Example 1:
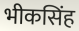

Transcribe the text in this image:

भीकसिंह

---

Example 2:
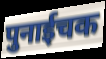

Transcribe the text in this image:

पुनाईचक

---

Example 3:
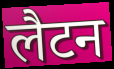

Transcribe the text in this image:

लैटन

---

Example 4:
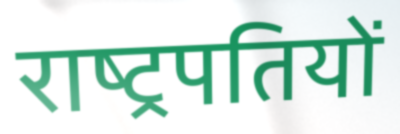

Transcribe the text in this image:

राष्ट्रपतियों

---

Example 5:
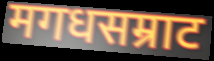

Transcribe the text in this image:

मगधसम्राट